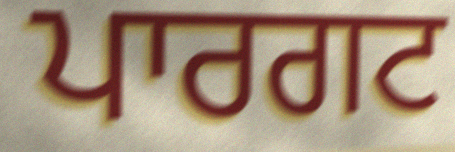
ਪਾਰਗਟ